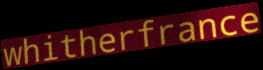
whitherfrance